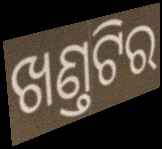
ଖଣ୍ତଟିର